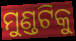
ମୁଣ୍ଡଟିକୁ